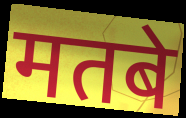
मतबे